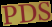
PDS